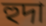
হুদা